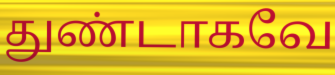
துண்டாகவே